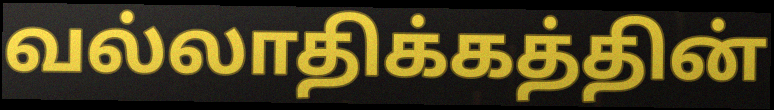
வல்லாதிக்கத்தின்